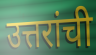
उत्तरांची